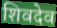
शिवदेव